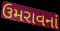
ઉમરાવનાં